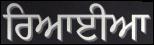
ਰਿਆਈਆ